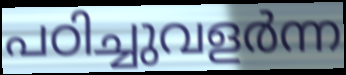
പഠിച്ചുവളർന്ന